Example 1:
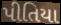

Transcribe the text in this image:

પીતિયા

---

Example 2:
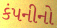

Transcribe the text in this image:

કંપનીનો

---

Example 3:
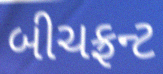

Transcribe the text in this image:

બીચફ્રન્ટ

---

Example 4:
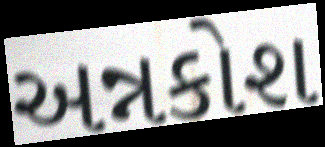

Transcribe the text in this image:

અન્નકોશ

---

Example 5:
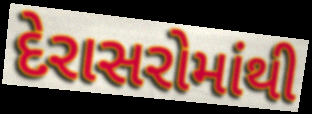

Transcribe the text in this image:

દેરાસરોમાંથી